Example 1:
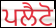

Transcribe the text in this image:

ਪਲੈਟੋ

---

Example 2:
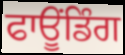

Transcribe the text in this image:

ਫਾਊਂਡਿੰਗ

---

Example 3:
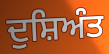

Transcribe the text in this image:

ਦੁਸ਼ਿਅੰਤ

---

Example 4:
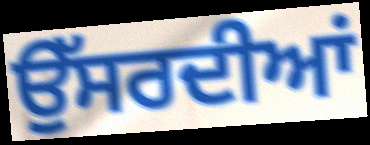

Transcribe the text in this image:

ਉੱਸਰਦੀਆਂ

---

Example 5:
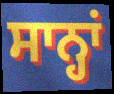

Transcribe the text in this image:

ਸਾਨ੍ਹਾਂ